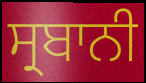
ਸ੍ਰਬਾਨੀ